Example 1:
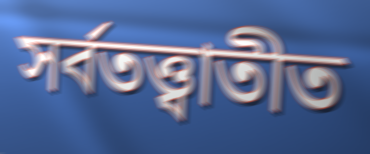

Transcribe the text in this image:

সর্বতত্ত্বাতীত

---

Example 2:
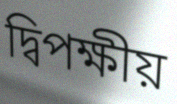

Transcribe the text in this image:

দ্বিপক্ষীয়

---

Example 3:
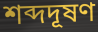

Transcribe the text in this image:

শব্দদূষণ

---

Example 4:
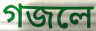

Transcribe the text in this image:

গজলে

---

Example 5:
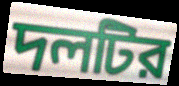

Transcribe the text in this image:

দলটির